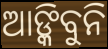
ଆଙ୍କିବୁନି